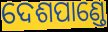
ଦେଶପାଣ୍ଡେ